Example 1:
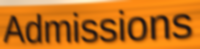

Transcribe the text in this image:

Admissions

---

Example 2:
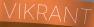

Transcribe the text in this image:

VIKRANT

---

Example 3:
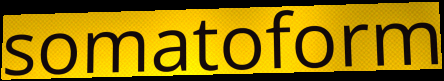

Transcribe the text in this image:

somatoform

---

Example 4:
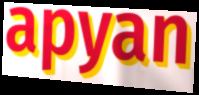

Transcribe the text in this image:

apyan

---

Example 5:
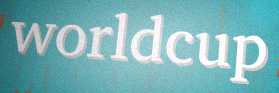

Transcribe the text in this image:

worldcup